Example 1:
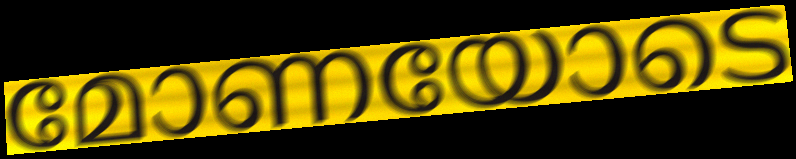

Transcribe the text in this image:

മോണയോടെ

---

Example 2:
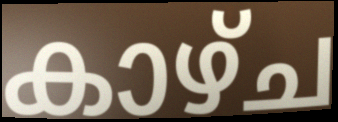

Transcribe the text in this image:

കാഴ്ച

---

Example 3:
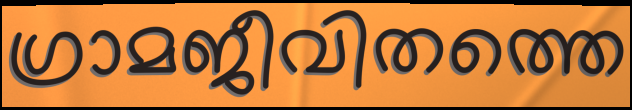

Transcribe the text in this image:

ഗ്രാമജീവിതത്തെ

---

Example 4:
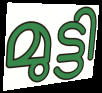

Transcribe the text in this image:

മുട്ടി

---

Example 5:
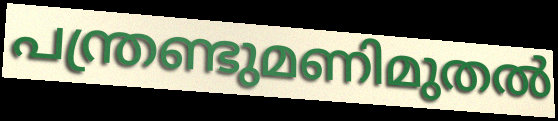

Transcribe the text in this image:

പന്ത്രണ്ടുമണിമുതൽ